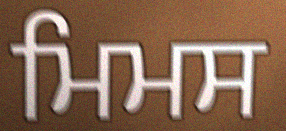
ਮਿਮਸ